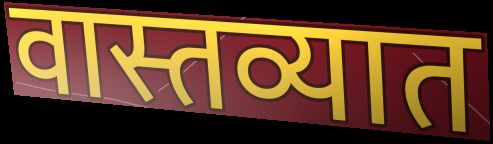
वास्तव्यात